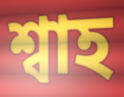
শ্বাহ